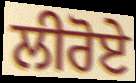
ਲੀਰੋਏ